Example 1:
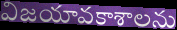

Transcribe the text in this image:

విజయావకాశాలను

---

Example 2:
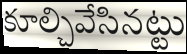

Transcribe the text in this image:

కూల్చివేసినట్టు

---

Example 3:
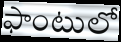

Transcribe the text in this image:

ఫాంటులో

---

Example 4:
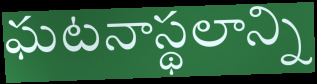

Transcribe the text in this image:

ఘటనాస్థలాన్ని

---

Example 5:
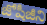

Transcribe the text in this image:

జోషీజీని